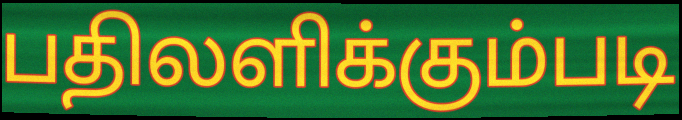
பதிலளிக்கும்படி